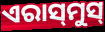
ଏରାସ୍‍ମୁସ୍